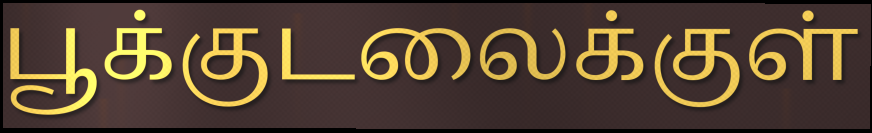
பூக்குடலைக்குள்